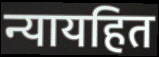
न्यायहित